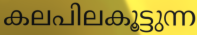
കലപിലകൂട്ടുന്ന